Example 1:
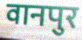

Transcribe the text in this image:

वानपुर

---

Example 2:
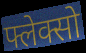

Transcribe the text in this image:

फ्लेक्सो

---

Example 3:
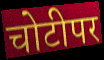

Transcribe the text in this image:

चोटीपर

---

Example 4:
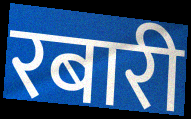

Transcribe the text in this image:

रबारी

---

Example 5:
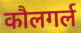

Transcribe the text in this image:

कौलगर्ल